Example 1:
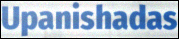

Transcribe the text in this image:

Upanishadas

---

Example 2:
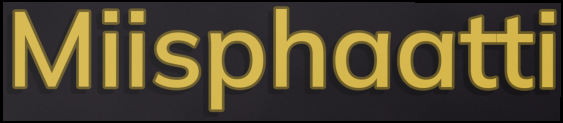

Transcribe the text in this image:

Miisphaatti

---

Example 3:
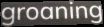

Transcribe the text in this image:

groaning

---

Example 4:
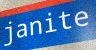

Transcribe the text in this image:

janite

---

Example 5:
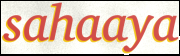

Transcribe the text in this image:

sahaaya